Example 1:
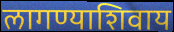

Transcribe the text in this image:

लागण्याशिवाय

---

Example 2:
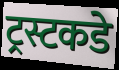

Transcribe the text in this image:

ट्रस्टकडे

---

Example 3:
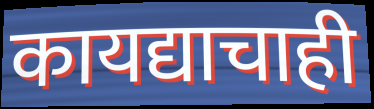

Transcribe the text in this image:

कायद्याचाही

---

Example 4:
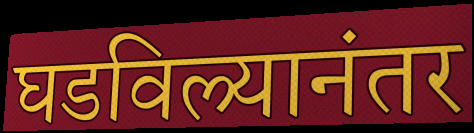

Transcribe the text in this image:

घडविल्यानंतर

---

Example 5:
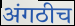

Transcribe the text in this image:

अंगठीच